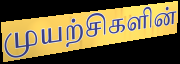
முயற்சிகளின்